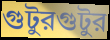
গুটুরগুটুর